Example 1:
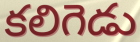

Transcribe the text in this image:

కలిగెడు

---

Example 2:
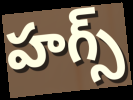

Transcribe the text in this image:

హగ్స్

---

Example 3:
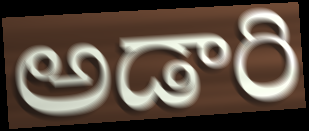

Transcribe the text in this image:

అడారి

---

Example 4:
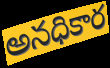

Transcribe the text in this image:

అనధికార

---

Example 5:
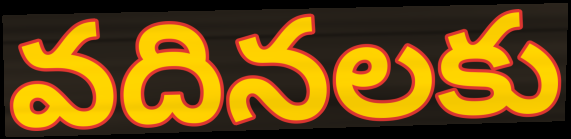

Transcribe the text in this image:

వదినలకు